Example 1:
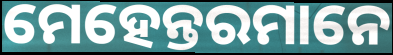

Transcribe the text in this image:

ମେହେନ୍ତରମାନେ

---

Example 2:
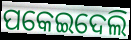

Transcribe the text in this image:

ପକେଇଦେଲି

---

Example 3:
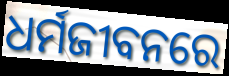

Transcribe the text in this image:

ଧର୍ମଜୀବନରେ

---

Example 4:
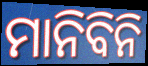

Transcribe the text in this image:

ମାନିବିନି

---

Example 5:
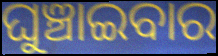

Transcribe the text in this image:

ଘୁଞ୍ଚାଇବାର